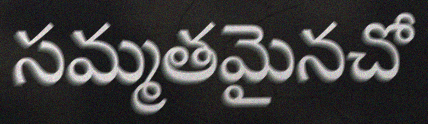
సమ్మతమైనచో